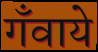
गँवाये